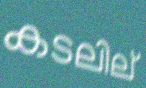
കടലില്